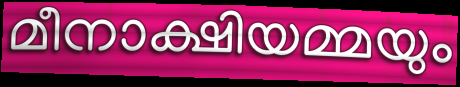
മീനാക്ഷിയമ്മയും